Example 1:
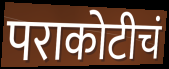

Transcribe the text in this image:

पराकोटीचं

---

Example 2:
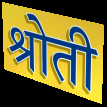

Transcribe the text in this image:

श्रोती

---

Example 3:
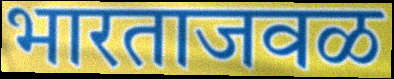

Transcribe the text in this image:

भारताजवळ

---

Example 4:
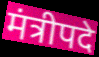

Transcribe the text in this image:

मंत्रीपदे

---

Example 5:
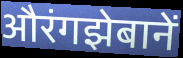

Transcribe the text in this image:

औरंगझेबानें